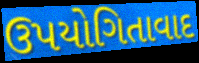
ઉપયોગિતાવાદ